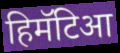
हिमॅटिआ